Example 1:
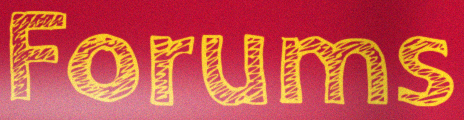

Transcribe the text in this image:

Forums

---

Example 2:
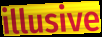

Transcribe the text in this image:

illusive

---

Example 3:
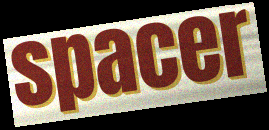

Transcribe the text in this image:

spacer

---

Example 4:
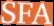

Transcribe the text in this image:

SFA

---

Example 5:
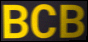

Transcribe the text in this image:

BCB